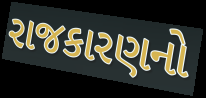
રાજકારણનો